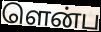
ளென்ப